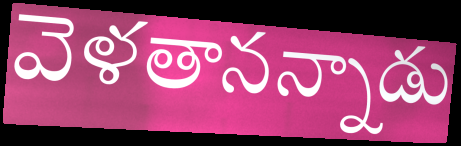
వెళతానన్నాడు